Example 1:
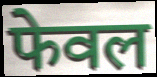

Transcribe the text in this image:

फेवल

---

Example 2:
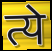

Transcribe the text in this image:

त्ये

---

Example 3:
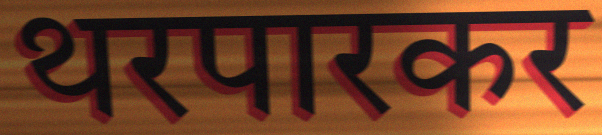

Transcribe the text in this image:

थरपारकर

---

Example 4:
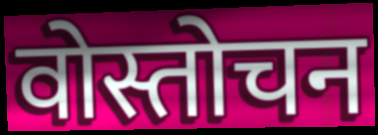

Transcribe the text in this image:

वोस्तोचन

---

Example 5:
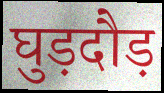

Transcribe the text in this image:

घुड़दौड़